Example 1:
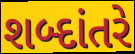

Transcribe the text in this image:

શબ્દાંતરે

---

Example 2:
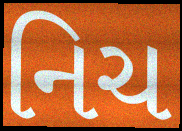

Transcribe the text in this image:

નિચ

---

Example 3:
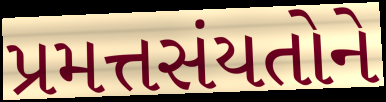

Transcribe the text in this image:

પ્રમત્તસંયતોને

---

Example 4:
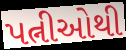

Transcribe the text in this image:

પત્નીઓથી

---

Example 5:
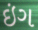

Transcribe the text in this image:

ઇંગ